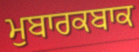
ਮੁਬਾਰਕਬਾਕ